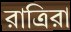
রাত্রিরা